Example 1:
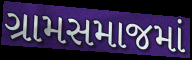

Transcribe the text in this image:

ગ્રામસમાજમાં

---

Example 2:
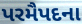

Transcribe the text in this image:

પરમૈપદના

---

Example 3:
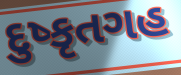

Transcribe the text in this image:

દુષ્કૃતગહ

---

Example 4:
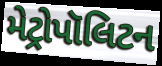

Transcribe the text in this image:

મેટ્રોપૉલિટન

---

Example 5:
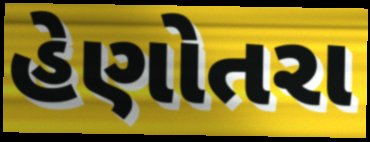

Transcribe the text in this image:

હેણોતરા